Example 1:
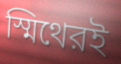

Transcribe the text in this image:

স্মিথেরই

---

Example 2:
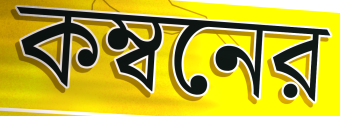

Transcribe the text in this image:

কম্বনের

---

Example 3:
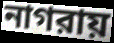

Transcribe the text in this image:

নাগরায়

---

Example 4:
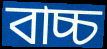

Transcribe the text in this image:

বাচ্চ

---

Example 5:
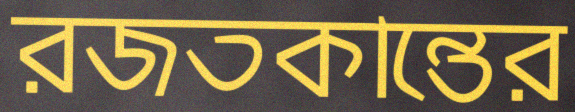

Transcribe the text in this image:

রজতকান্তের